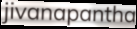
jivanapantha